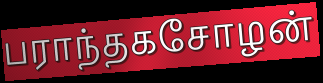
பராந்தகசோழன்